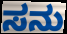
ಸನು